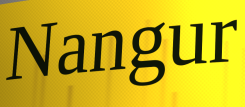
Nangur